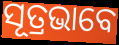
ସୂତ୍ରଭାବେ